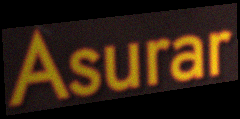
Asurar